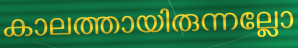
കാലത്തായിരുന്നല്ലോ